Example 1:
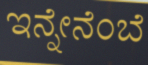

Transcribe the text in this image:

ಇನ್ನೇನೆಂಬೆ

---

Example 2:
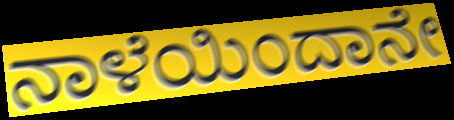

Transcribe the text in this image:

ನಾಳೆಯಿಂದಾನೇ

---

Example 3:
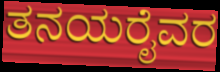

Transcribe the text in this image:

ತನಯರೈವರ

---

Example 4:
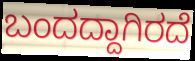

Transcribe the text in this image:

ಬಂದದ್ದಾಗಿರದೆ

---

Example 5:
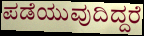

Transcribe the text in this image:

ಪಡೆಯುವುದಿದ್ದರೆ